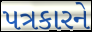
પત્રકારને